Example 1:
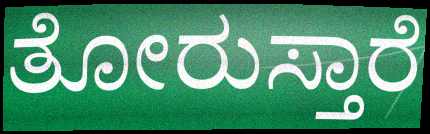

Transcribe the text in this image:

ತೋರುಸ್ತಾರೆ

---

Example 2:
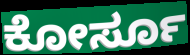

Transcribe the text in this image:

ಕೋರ್ಸೂ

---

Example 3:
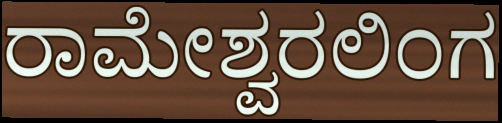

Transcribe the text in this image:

ರಾಮೇಶ್ವರಲಿಂಗ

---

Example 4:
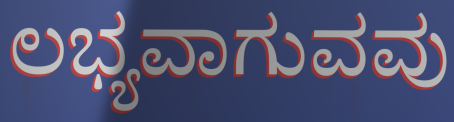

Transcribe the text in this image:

ಲಭ್ಯವಾಗುವವು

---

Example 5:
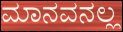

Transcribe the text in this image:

ಮಾನವನಲ್ಲ